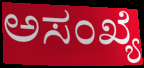
ಅಸಂಖ್ಯೆ